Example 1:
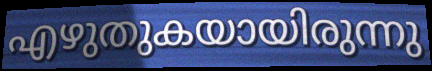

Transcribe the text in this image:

എഴുതുകയായിരുന്നു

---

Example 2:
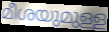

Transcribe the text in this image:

മീശയുമുള്ള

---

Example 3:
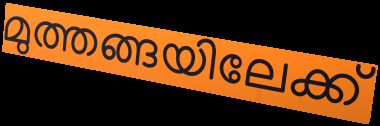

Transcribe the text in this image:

മുത്തങ്ങയിലേക്ക്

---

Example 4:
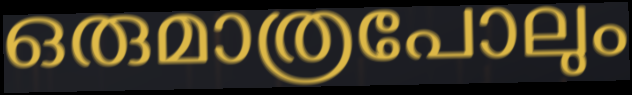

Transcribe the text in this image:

ഒരുമാത്രപോലും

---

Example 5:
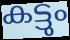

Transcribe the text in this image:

കട്ടും